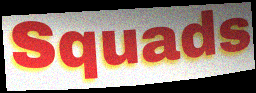
Squads